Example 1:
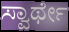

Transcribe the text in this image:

ಸ್ವಾರ್ಥೇ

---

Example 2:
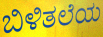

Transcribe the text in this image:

ಬಿಳಿತಲೆಯ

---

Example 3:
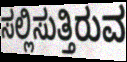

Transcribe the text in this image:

ಸಲ್ಲಿಸುತ್ತಿರುವ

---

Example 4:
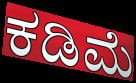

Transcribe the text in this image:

ಕಡಿಮೆ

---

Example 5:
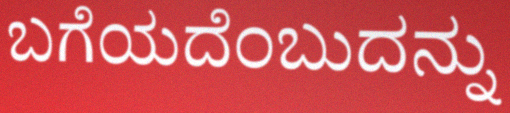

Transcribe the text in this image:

ಬಗೆಯದೆಂಬುದನ್ನು